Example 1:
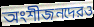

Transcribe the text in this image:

অংশীজনদেরও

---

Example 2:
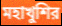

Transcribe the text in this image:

মহাখুশির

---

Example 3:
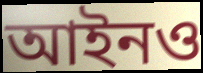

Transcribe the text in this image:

আইনও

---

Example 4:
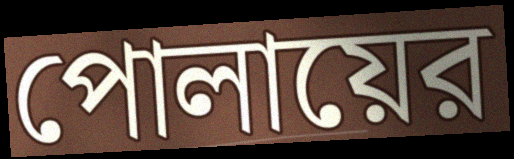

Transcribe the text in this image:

পোলায়ের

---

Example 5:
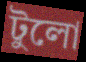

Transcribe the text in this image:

টুলো